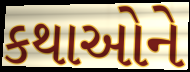
કથાઓને